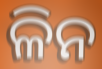
ଳିନ